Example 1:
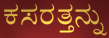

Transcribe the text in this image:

ಕಸರತ್ತನ್ನು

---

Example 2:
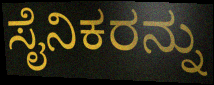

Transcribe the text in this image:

ಸೈನಿಕರನ್ನು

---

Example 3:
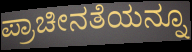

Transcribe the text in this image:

ಪ್ರಾಚೀನತೆಯನ್ನೂ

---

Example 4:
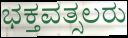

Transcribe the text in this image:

ಭಕ್ತವತ್ಸಲರು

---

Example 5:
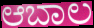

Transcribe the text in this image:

ಆಬಾಲ